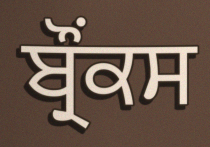
ਬ੍ਰੌਂਕਸ